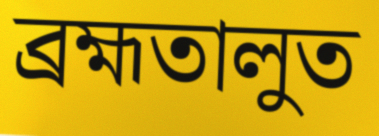
ব্ৰহ্মতালুত